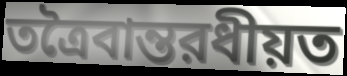
তত্রৈবান্তরধীয়ত